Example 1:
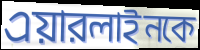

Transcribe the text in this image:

এয়ারলাইনকে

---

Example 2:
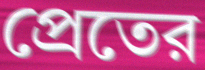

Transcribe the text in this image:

প্রেতের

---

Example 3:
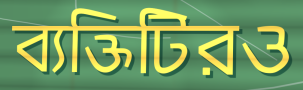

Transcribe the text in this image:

ব্যক্তিটিরও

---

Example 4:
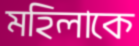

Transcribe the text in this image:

মহিলাকে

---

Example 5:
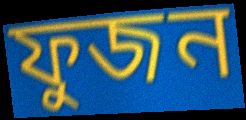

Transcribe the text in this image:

ফুজন